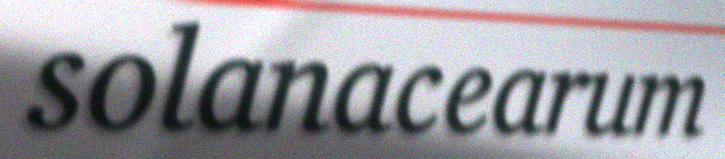
solanacearum